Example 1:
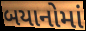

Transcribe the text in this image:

બયાનોમાં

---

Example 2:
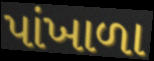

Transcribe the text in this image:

પાંખાળા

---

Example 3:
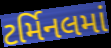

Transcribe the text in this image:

ટર્મિનલમાં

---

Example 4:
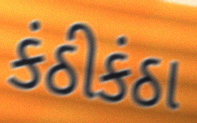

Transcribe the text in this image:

કંઠીકંઠા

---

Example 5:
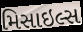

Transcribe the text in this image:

મિસાઇલ્સ